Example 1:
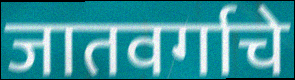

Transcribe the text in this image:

जातवर्गाचे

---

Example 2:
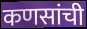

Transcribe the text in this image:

कणसांची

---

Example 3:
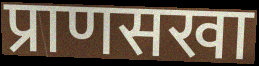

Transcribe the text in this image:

प्राणसखा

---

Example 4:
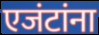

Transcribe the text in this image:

एजंटांना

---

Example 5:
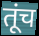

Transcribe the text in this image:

तूंच